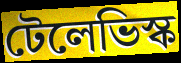
টেলেভিস্ক